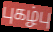
புகழ்பு